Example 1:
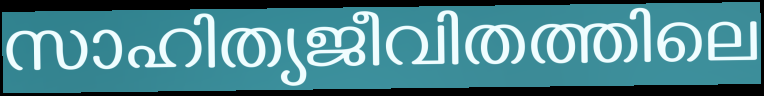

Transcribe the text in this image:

സാഹിത്യജീവിതത്തിലെ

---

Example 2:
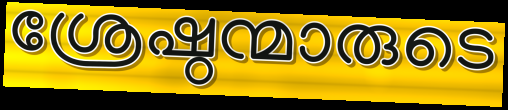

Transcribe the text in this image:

ശ്രേഷ്ഠന്മാരുടെ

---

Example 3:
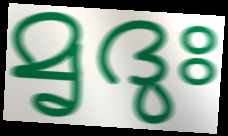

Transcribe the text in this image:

മൃദുഃ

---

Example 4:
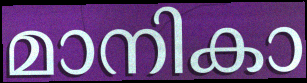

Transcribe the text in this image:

മാനികാ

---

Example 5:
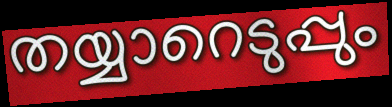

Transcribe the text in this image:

തയ്യാറെടുപ്പും